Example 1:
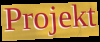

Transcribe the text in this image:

Projekt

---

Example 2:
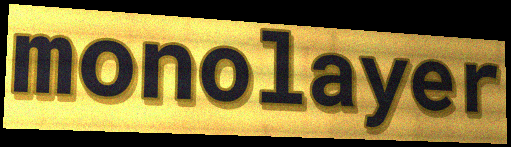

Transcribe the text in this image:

monolayer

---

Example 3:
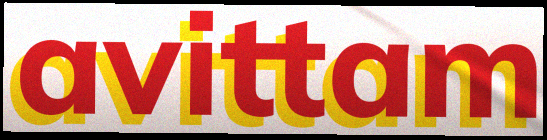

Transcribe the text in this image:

avittam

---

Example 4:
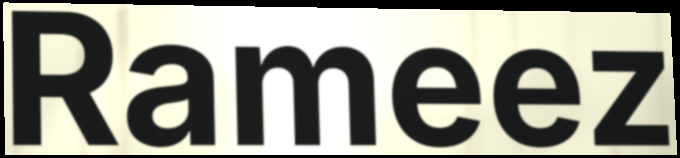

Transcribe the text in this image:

Rameez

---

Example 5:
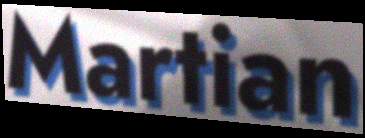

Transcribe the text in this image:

Martian